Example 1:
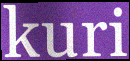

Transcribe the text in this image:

kuri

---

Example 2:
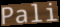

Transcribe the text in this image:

Pali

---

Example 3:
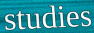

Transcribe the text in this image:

studies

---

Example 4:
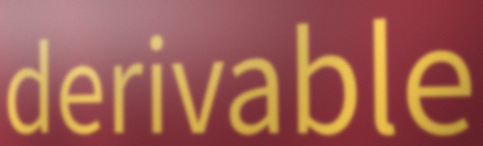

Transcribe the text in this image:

derivable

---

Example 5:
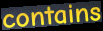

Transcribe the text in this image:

contains